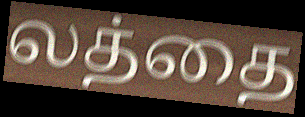
லத்தை